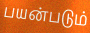
பயன்படும்